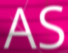
AS